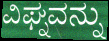
ವಿಘ್ನವನ್ನು